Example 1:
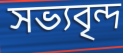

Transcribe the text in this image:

সভ্যবৃন্দ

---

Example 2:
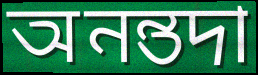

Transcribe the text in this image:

অনন্তদা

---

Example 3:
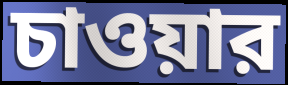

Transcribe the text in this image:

চাওয়ার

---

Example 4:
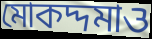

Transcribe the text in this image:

মোকদ্দমাও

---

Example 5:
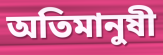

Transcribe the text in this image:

অতিমানুষী